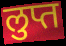
लुप्त